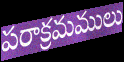
పరాక్రమములు